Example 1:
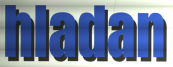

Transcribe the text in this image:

hladan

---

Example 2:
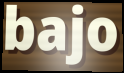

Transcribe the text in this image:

bajo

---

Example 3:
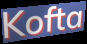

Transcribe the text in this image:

Kofta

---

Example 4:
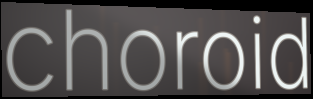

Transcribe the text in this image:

choroid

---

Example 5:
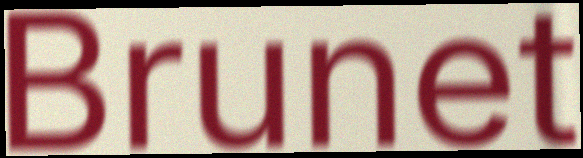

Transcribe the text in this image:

Brunet